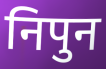
निपुन